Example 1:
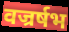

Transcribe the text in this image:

वज्रर्षभ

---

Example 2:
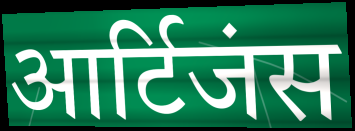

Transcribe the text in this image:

आर्टिजंस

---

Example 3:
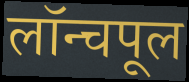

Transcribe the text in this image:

लॉन्चपूल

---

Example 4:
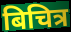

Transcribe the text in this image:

बिचित्र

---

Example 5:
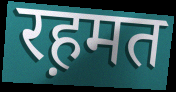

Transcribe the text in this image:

रह़मत